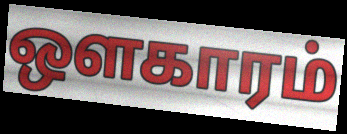
ஔகாரம்